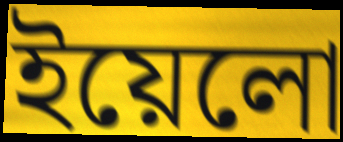
ইয়েলো